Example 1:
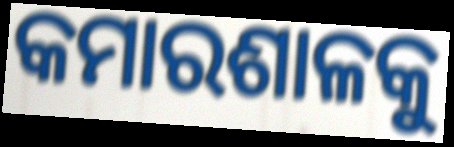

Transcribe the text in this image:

କମାରଶାଳକୁ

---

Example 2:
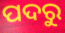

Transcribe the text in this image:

ପଦରୁ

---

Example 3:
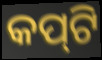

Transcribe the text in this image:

କପ୍‌ଟି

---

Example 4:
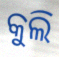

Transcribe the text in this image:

କୁଲି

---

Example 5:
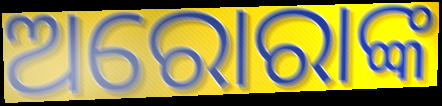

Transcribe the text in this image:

ଅରୋରାଙ୍କ